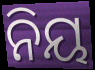
ନିୟ